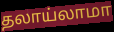
தலாய்லாமா